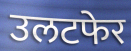
उलटफेर